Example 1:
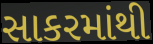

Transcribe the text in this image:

સાકરમાંથી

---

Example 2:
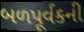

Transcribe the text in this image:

બળપૂર્વકની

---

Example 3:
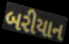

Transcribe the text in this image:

બરીયાન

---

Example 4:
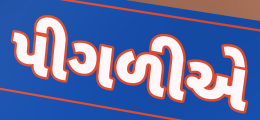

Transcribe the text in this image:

પીગળીએ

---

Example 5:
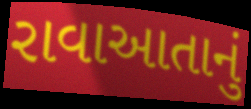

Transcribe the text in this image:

રાવાઆતાનું